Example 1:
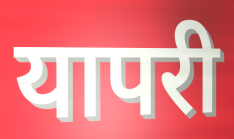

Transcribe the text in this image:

यापरी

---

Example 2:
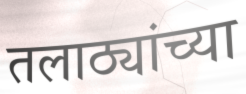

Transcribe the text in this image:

तलाठ्यांच्या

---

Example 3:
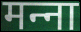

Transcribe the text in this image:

मन्ना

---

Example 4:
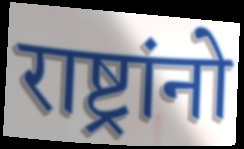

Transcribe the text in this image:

राष्ट्रांनो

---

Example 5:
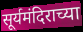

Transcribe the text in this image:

सूर्यमंदिराच्या